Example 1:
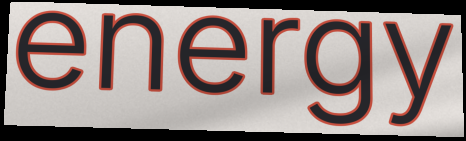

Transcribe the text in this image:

energy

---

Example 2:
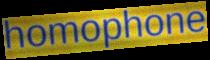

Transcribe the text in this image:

homophone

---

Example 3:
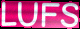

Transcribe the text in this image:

LUFS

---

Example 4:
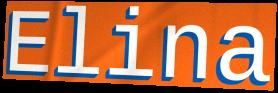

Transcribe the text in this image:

Elina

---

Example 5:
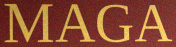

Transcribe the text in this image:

MAGA